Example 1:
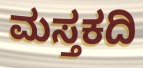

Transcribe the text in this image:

ಮಸ್ತಕದಿ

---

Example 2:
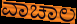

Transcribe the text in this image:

ವಾಚಾಲ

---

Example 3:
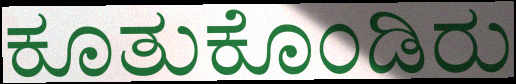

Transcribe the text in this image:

ಕೂತುಕೊಂಡಿರು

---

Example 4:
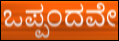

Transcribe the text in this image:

ಒಪ್ಪಂದವೇ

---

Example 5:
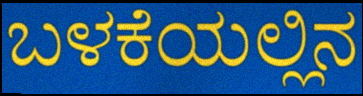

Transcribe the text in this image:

ಬಳಕೆಯಲ್ಲಿನ